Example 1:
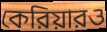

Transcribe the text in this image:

কেরিয়ারও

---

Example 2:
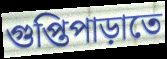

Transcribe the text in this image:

গুপ্তিপাড়াতে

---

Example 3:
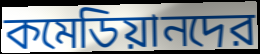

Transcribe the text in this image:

কমেডিয়ানদের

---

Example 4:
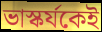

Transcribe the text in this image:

ভাস্কর্যকেই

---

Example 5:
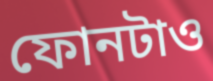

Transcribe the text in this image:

ফোনটাও